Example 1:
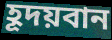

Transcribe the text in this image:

হূদয়বান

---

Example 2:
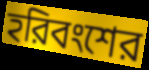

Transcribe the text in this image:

হরিবংশের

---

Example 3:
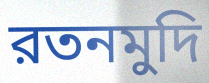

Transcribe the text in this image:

রতনমুদি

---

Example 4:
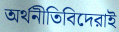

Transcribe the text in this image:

অর্থনীতিবিদেরাই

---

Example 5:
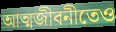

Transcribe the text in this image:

আত্মজীবনীতেও